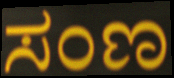
ಸಂಣ